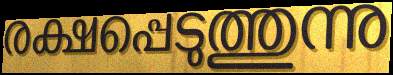
രക്ഷപ്പെടുത്തുന്നു